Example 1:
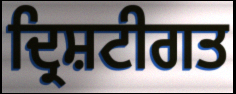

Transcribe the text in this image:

ਦ੍ਰਿਸ਼ਟੀਗਤ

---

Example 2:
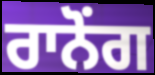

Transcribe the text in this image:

ਰਾਨੋਂਗ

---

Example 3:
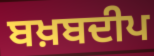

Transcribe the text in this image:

ਬਖ਼ਬਦੀਪ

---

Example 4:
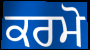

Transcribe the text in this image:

ਕਰਮੋ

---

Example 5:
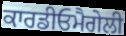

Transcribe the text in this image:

ਕਾਰਡੀਓਮੈਗੇਲੀ